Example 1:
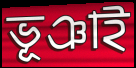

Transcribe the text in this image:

ভূঞাই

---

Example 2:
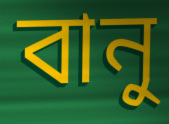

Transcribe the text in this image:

বানু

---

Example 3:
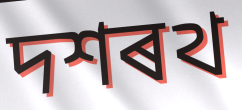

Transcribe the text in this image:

দশৰথ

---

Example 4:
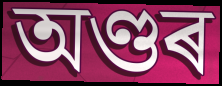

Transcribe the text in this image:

অণ্ডৰ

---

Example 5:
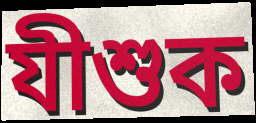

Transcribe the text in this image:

যীশুক